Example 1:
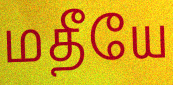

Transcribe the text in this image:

மதீயே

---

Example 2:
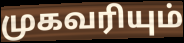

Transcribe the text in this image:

முகவரியும்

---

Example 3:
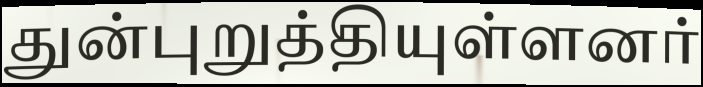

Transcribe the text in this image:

துன்புறுத்தியுள்ளனர்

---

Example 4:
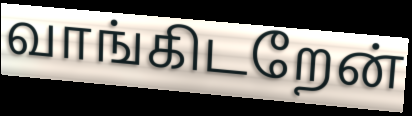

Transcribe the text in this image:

வாங்கிடறேன்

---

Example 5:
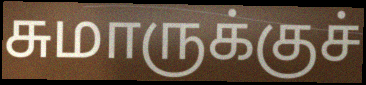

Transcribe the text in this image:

சுமாருக்குச்